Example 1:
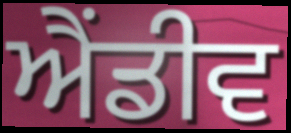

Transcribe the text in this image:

ਐਂਡੀਵ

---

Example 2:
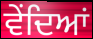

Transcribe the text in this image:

ਵੇਂਦਿਆਂ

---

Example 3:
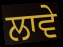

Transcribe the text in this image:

ਲਾਵੇ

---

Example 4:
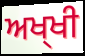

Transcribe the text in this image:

ਅਖ੍ਖੀ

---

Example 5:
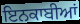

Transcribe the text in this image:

ਇਨਕਾਬੀਆਂ